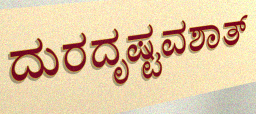
ದುರದೃಷ್ಟವಶಾತ್